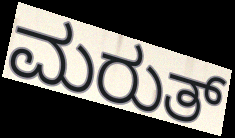
ಮರುತ್